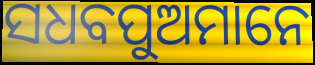
ସଧବପୁଅମାନେ